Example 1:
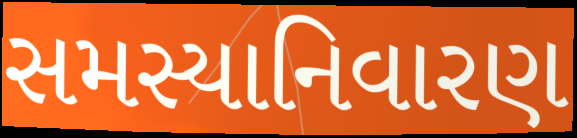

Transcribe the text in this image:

સમસ્યાનિવારણ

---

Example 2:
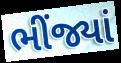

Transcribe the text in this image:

ભીંજ્યાં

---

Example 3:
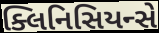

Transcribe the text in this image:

ક્લિનિસિયન્સે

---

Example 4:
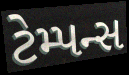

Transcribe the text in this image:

ટેમ્પન્સ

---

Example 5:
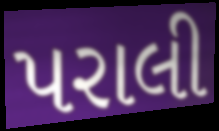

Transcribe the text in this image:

પરાલી